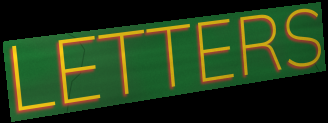
LETTERS